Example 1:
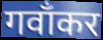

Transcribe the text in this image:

गवाँकर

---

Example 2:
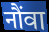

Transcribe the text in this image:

नौंवा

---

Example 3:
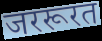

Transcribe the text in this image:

जररूरत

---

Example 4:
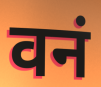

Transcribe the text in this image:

वनं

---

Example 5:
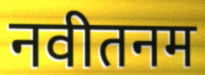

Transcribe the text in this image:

नवीतनम